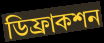
ডিফ্রাকশন